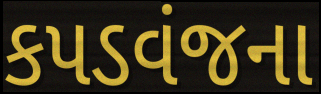
કપડવંજના